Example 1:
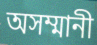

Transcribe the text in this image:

অসম্মানী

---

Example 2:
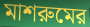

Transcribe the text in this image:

মাশরুমের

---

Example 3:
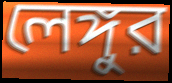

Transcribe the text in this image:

লেঙ্গুর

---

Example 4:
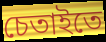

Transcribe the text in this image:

চেতাইতে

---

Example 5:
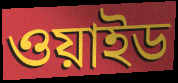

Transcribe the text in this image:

ওয়াইড